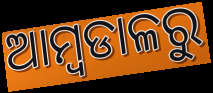
ଆମ୍ବଡାଳରୁ